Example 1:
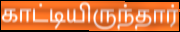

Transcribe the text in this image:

காட்டியிருந்தார்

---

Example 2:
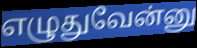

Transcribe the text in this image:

எழுதுவேன்னு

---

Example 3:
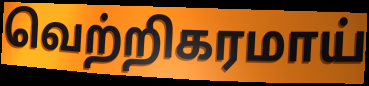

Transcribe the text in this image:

வெற்றிகரமாய்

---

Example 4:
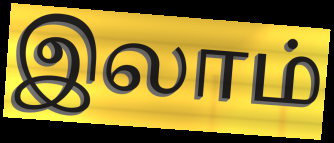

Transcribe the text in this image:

இலாம்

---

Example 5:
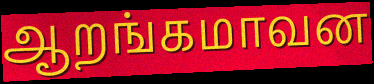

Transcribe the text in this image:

ஆறங்கமாவன